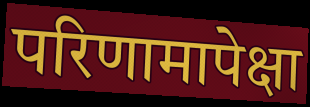
परिणामापेक्षा